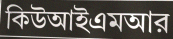
কিউআইএমআর